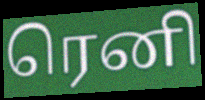
ரெனி